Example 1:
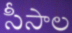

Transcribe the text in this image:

సీసాల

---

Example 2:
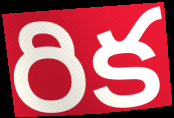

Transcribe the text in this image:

రిక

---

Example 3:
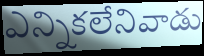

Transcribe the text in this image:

ఎన్నికలేనివాడు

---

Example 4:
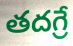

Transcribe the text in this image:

తదగ్రే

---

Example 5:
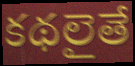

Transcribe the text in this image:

కథలైతే